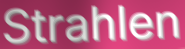
Strahlen